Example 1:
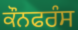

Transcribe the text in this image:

ਕੌਨਫਰੰਸ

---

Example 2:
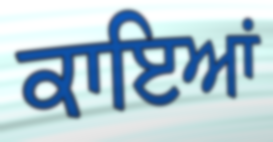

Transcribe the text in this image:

ਕਾਇਆਂ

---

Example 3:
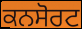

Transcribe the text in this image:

ਕਨਸੋਰਟ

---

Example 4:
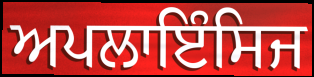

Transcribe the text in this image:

ਅਪਲਾਇੰਸਿਜ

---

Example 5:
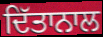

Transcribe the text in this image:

ਦਿੱਤਾਨਾਲ